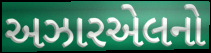
અઝારએલનો